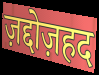
ज़द्दोज़हद